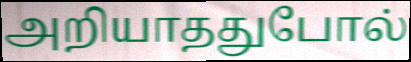
அறியாததுபோல்